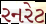
રનરેટ